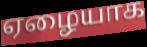
ஏழையாக